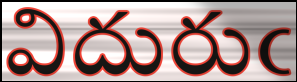
విదురుఁ